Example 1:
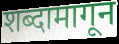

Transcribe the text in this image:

शब्दामागून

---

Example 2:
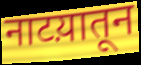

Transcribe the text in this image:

नाटय़ातून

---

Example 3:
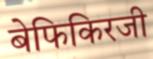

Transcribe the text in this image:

बेफिकिरजी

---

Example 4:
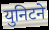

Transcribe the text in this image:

युनिटने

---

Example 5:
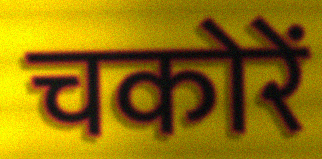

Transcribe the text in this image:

चकोरें